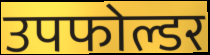
उपफोल्डर